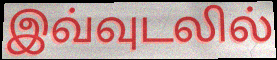
இவ்வுடலில்